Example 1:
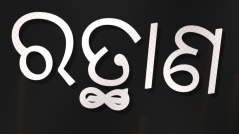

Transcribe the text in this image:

ରତ୍ର୍ଥାଣ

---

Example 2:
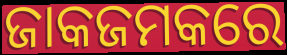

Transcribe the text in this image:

ଜାକଜମକରେ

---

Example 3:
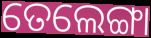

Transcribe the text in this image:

ତେଲେଙ୍ଗା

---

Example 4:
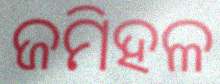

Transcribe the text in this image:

ଜମିହଳ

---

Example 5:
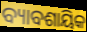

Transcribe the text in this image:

ବ୍ୟାବଶାୟିକ